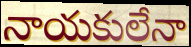
నాయకులేనా